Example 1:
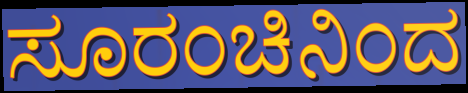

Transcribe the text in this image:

ಸೂರಂಚಿನಿಂದ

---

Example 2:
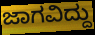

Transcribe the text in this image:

ಜಾಗವಿದ್ದು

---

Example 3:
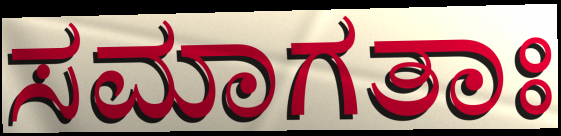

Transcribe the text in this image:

ಸಮಾಗತಾಃ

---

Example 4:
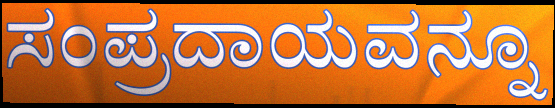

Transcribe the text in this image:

ಸಂಪ್ರದಾಯವನ್ನೂ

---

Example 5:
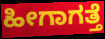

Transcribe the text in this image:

ಹೀಗಾಗತ್ತೆ